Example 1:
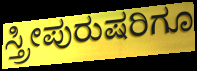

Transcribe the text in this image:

ಸ್ತ್ರೀಪುರುಷರಿಗೂ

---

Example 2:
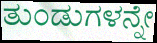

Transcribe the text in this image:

ತುಂಡುಗಳನ್ನೇ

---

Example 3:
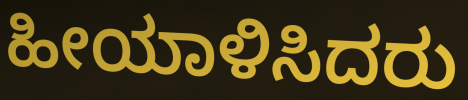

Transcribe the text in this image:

ಹೀಯಾಳಿಸಿದರು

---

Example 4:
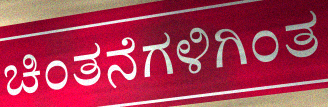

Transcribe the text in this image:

ಚಿಂತನೆಗಳಿಗಿಂತ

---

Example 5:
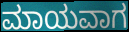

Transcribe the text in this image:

ಮಾಯವಾಗ